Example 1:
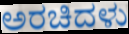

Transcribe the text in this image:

ಅರಚಿದಳು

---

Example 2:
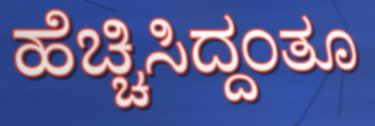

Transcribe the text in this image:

ಹೆಚ್ಚಿಸಿದ್ದಂತೂ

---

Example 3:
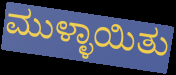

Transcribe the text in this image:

ಮುಳ್ಳಾಯಿತು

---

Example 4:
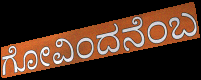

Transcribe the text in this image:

ಗೋವಿಂದನೆಂಬ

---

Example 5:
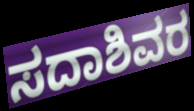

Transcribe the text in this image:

ಸದಾಶಿವರ